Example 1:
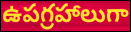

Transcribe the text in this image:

ఉపగ్రహాలుగా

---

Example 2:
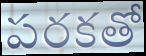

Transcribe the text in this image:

పరకతో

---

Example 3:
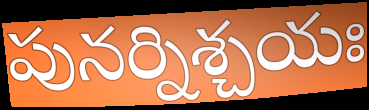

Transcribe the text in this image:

పునర్నిశ్చయః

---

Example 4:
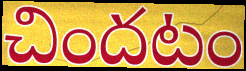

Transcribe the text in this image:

చిందటం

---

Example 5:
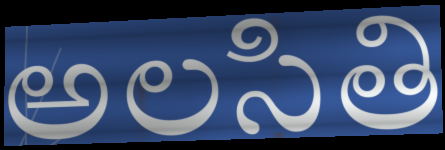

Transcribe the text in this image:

అలసితి